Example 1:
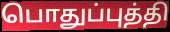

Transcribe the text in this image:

பொதுப்புத்தி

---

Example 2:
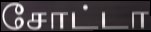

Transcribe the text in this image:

சோட்டா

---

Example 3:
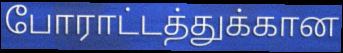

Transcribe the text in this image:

போராட்டத்துக்கான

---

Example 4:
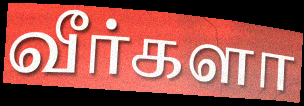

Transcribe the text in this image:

வீர்களா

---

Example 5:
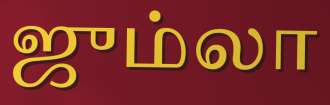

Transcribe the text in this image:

ஜும்லா